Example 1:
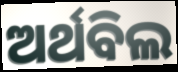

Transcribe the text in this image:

ଅର୍ଥବିଲ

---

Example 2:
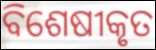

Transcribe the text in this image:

ବିଶେଷୀକୃତ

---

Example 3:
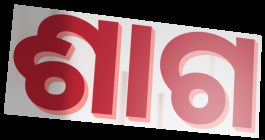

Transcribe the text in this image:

ଶାଗ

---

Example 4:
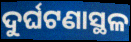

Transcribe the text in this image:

ଦୁର୍ଘଟଣାସ୍ଥଳ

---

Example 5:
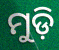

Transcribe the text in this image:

ମୁଡ଼ି